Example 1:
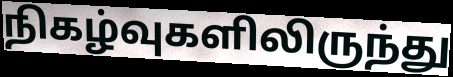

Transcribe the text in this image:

நிகழ்வுகளிலிருந்து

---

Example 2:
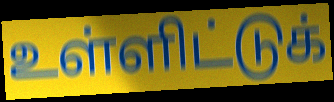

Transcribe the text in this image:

உள்ளிட்டுக்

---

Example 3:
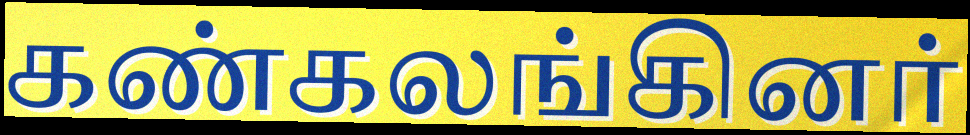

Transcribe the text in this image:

கண்கலங்கினர்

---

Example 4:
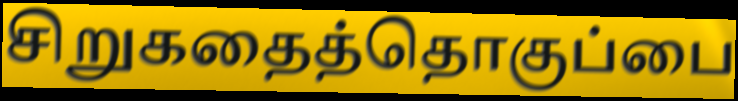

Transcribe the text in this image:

சிறுகதைத்தொகுப்பை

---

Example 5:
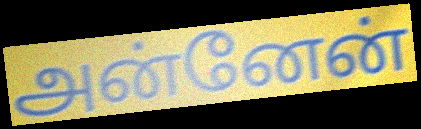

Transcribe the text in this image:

அன்னேன்